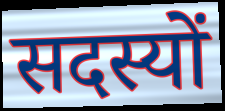
सदस्यों